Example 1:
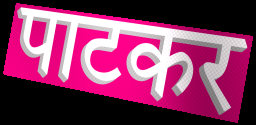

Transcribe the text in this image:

पाटकर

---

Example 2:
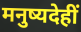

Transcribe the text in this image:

मनुष्यदेहीं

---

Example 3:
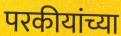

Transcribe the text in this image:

परकीयांच्या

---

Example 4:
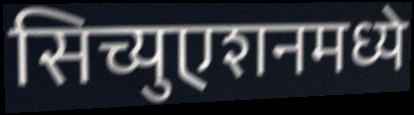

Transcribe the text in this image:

सिच्युएशनमध्ये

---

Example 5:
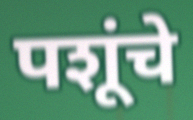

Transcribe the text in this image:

पशूंचे